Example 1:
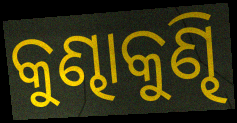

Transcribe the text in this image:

କୁଣ୍ଢାକୁଣ୍ଢି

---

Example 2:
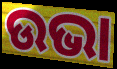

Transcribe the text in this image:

ଉଭା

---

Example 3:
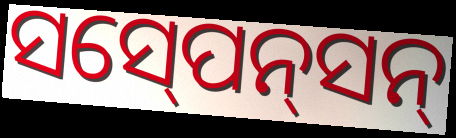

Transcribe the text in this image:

ସସ୍‍ପେନ୍‍ସନ୍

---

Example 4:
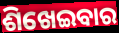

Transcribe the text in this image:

ଶିଖେଇବାର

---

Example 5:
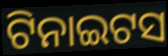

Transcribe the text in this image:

ଟିନାଇଟସ